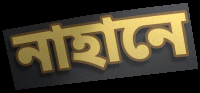
নাহানে